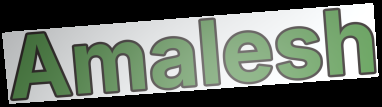
Amalesh